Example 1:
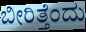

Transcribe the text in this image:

ಬೀರಿತ್ತೆಂದು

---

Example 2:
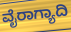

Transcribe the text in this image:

ವೈರಾಗ್ಯಾದಿ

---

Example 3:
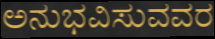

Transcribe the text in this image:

ಅನುಭವಿಸುವವರ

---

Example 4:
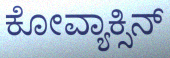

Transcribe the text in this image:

ಕೋವ್ಯಾಕ್ಸಿನ್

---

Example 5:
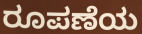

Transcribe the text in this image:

ರೂಪಣೆಯ